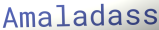
Amaladass